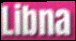
Libna